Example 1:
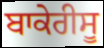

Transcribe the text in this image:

ਬਾਕੇਰੀਸੂ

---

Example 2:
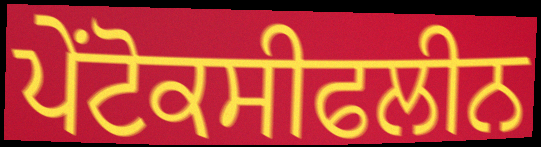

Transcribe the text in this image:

ਪੇਂਟੋਕਸੀਫਲੀਨ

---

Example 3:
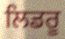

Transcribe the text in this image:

ਲਿਡਰੂ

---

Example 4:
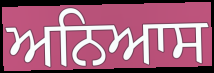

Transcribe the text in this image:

ਅਨਿਆਸ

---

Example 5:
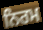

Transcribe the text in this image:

ਨਿਰਮ